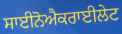
ਸਾਈਨੋਐਕਰਾਈਲੇਟ